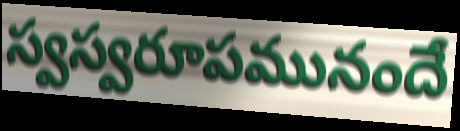
స్వస్వరూపమునందే